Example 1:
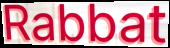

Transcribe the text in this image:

Rabbat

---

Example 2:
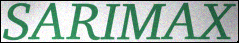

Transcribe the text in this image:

SARIMAX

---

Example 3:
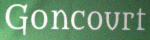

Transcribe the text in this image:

Goncourt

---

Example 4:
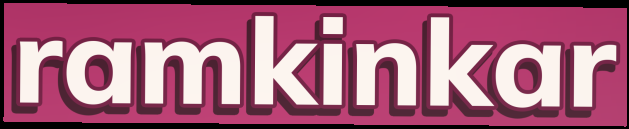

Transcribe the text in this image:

ramkinkar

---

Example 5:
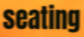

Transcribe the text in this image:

seating